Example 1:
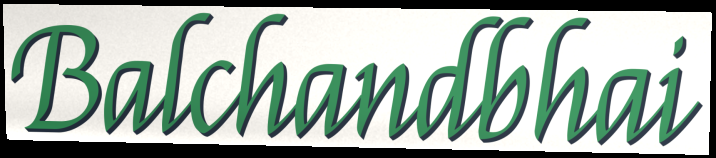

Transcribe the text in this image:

Balchandbhai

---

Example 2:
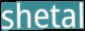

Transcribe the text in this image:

shetal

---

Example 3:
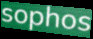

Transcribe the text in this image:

sophos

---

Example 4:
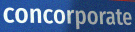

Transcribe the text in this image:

concorporate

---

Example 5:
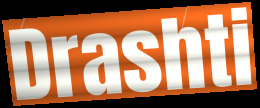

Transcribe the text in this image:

Drashti